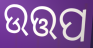
ଉତ୍ତପ